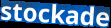
stockade